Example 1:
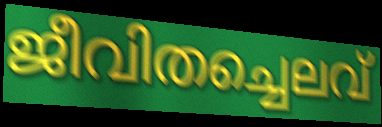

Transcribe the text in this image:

ജീവിതച്ചെലവ്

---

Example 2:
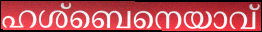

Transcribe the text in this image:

ഹശ്ബെനെയാവ്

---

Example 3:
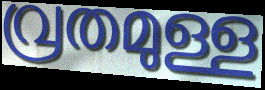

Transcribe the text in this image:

വ്രതമുള്ള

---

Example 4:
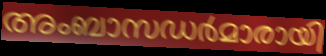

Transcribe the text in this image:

അംബാസഡർമാരായി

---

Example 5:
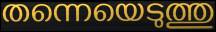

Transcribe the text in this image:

തന്നെയെടുത്തു